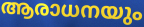
ആരാധനയും